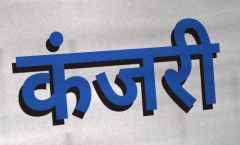
कंजरी